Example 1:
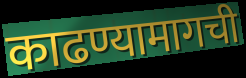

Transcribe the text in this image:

काढण्यामागची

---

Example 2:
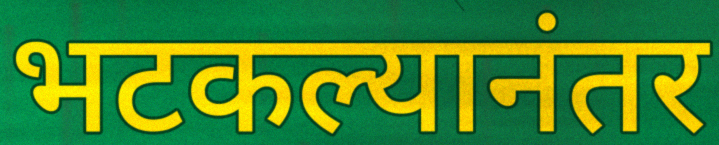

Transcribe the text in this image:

भटकल्यानंतर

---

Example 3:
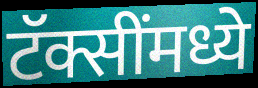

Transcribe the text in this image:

टॅक्सींमध्ये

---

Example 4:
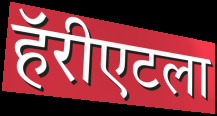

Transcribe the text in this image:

हॅरीएटला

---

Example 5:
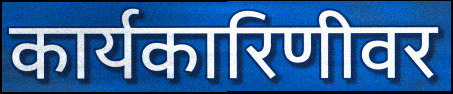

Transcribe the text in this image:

कार्यकारिणीवर